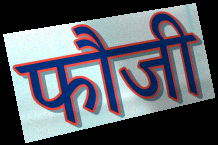
फौजी